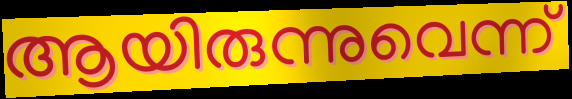
ആയിരുന്നുവെന്ന്